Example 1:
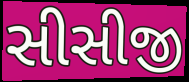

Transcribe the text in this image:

સીસીજી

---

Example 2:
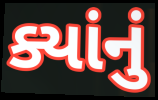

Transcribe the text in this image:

ક્યાંનું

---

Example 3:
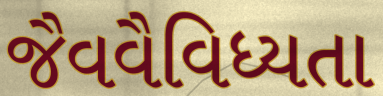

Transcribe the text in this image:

જૈવવૈવિધ્યતા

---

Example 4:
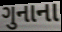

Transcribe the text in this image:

ગુનાના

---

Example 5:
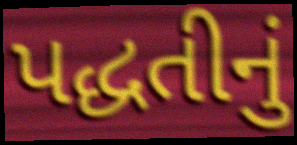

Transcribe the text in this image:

પદ્ધતીનું